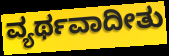
ವ್ಯರ್ಥವಾದೀತು